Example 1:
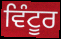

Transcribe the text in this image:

ਵਿੰਟੂਰ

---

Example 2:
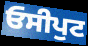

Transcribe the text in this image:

ਓਸੀਪੁਟ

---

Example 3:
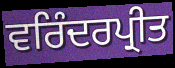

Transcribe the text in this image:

ਵਰਿੰਦਰਪ੍ਰੀਤ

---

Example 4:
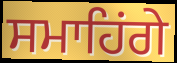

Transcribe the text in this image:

ਸਮਾਹਿਂਗੇ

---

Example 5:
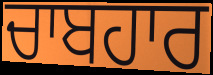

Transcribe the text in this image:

ਚਾਬਹਾਰ